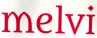
melvi